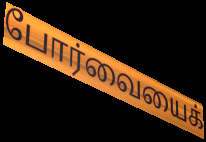
போர்வையைக்